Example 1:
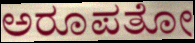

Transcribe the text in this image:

ಅರೂಪತೋ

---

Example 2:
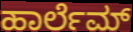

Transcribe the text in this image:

ಹಾರ್ಲೆಮ್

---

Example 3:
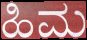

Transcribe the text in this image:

ಹಿಮ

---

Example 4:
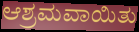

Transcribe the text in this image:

ಆಶ್ರಮವಾಯಿತು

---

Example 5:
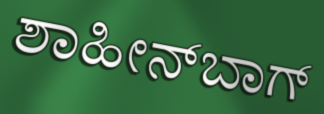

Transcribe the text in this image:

ಶಾಹೀನ್‌ಬಾಗ್